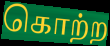
கொற்ற